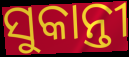
ସୁକାନ୍ତୀ